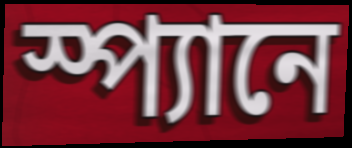
স্প্যানে